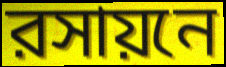
রসায়নে